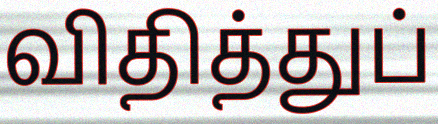
விதித்துப்